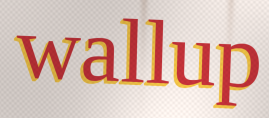
wallup